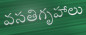
వసతిగృహాలు